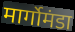
मार्गोमंडा